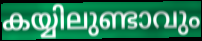
കയ്യിലുണ്ടാവും